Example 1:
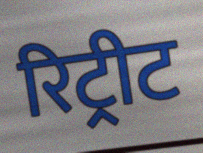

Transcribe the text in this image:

रिट्रीट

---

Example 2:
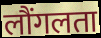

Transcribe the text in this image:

लौंगलता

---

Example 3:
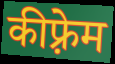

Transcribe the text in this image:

कीफ़्रेम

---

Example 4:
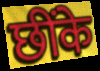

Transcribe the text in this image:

छींके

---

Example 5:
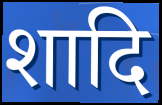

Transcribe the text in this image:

शादि